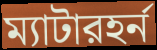
ম্যাটারহর্ন